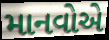
માનવોએ